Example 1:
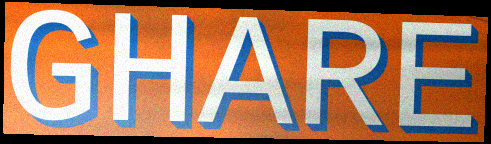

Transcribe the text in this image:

GHARE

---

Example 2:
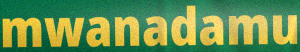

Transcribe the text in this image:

mwanadamu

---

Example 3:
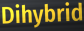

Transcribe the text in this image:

Dihybrid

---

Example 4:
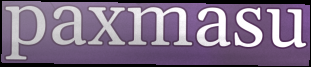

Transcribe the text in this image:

paxmasu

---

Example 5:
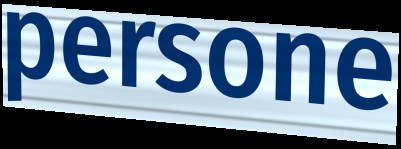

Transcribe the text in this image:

persone